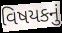
વિષયકનું